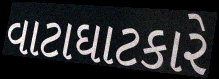
વાટાઘાટકારે